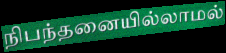
நிபந்தனையில்லாமல்